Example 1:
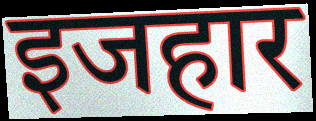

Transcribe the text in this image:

इजहार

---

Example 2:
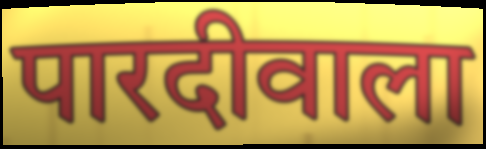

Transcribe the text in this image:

पारदीवाला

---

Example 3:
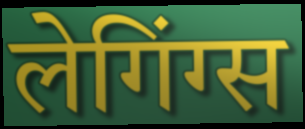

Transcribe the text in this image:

लेगिंग्स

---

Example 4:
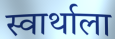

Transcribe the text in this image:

स्वार्थाला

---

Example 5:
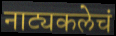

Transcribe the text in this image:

नाट्यकलेचं